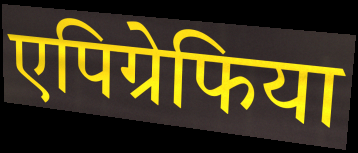
एपिग्रेफिया